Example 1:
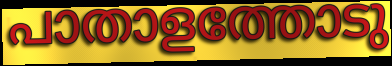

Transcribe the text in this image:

പാതാളത്തോടു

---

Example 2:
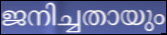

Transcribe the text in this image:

ജനിച്ചതായും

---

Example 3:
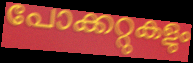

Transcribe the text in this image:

പോക്കറ്റുകളും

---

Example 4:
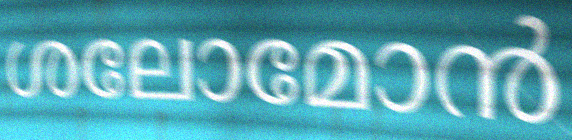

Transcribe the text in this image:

ശലോമോൻ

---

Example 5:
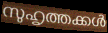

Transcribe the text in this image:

സുഹൃത്തക്കൾ